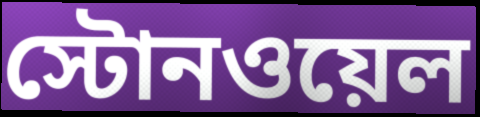
স্টোনওয়েল